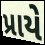
પ્રાયે